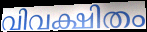
വിവക്ഷിതം